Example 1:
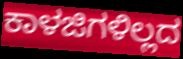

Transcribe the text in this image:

ಕಾಳಜಿಗಳಿಲ್ಲದ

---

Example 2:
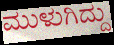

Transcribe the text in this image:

ಮುಳುಗಿದ್ದು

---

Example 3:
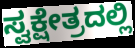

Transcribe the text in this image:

ಸ್ವಕ್ಷೇತ್ರದಲ್ಲಿ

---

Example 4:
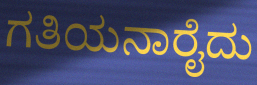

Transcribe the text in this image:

ಗತಿಯನಾರೈದು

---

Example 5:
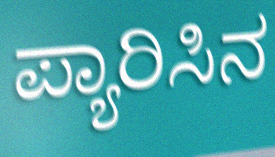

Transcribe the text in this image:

ಪ್ಯಾರಿಸಿನ